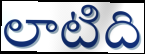
లాటిది